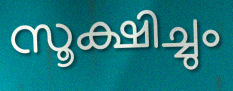
സൂക്ഷിച്ചും